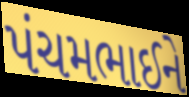
પંચમભાઈને